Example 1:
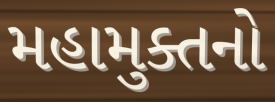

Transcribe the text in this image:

મહામુક્તનો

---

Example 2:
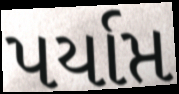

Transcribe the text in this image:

પર્યાપ્ત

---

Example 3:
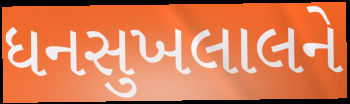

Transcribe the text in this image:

ધનસુખલાલને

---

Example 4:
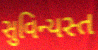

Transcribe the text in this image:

સુવિન્યસ્ત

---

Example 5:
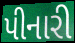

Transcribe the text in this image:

પીનારી